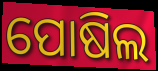
ପୋଷିଲ